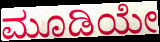
ಮೂಡಿಯೇ